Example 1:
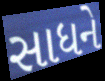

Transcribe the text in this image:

સાધને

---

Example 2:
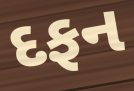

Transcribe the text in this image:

દફન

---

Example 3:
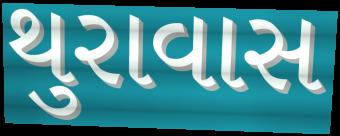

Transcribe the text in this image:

થુરાવાસ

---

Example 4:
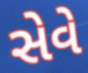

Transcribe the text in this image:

સેવે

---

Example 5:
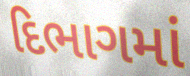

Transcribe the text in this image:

દિભાગમાં